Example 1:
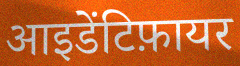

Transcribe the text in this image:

आइडेंटिफ़ायर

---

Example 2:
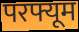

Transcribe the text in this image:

परफ्यूम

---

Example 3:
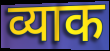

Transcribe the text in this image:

व्याक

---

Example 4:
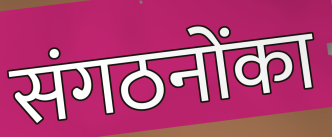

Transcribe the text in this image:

संगठनोंका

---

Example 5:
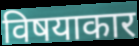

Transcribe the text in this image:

विषयाकार